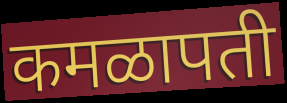
कमळापती